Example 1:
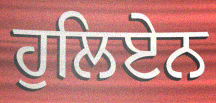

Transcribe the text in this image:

ਹੁਲਿਏਨ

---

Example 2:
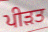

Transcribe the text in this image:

ਪੀਡ਼ਤ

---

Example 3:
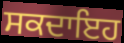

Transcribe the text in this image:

ਸਕਦਾਇਹ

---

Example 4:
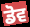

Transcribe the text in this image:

ਡੋਵ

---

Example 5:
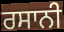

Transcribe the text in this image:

ਰਸਾਨੀ